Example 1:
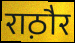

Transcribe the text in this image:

राठ़ौर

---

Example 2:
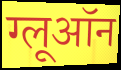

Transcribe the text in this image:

ग्लूऑन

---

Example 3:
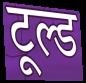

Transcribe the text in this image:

टूल्ड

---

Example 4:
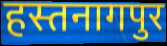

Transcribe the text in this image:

हस्तनागपुर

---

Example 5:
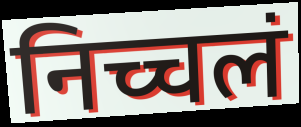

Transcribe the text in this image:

निच्चलं